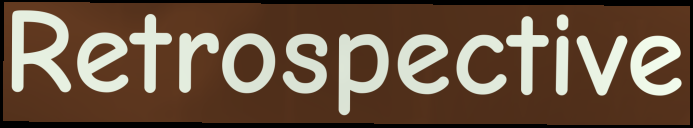
Retrospective